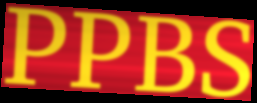
PPBS